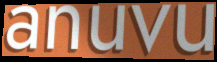
anuvu